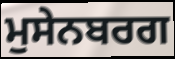
ਮੁਸੇਨਬਰਗ